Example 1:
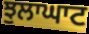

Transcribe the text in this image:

ਝੁਲਾਘਾਟ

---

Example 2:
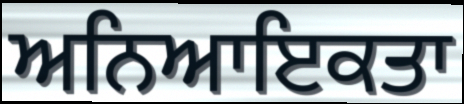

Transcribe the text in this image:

ਅਨਿਆਇਕਤਾ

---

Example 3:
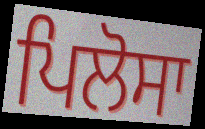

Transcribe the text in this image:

ਪਿਲੋਸਾ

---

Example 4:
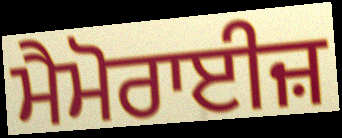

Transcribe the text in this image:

ਮੈਮੋਰਾਈਜ਼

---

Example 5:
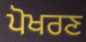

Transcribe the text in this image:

ਪੋਖਰਣ